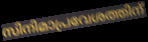
സിനിമാപ്രവേശത്തിന്